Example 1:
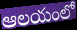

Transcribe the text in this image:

ఆలయంలో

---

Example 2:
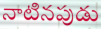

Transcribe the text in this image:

నాటినపుడు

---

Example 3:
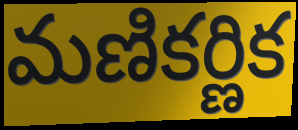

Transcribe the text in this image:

మణికర్ణిక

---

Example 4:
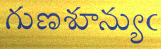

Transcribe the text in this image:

గుణశూన్యుఁ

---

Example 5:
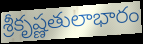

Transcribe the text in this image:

శ్రీకృష్ణతులాభారం